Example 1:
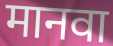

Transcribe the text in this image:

मानवा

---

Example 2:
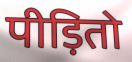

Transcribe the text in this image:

पीड़ितो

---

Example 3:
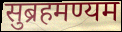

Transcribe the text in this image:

सुब्रहमण्यम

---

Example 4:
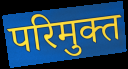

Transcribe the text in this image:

परिमुक्त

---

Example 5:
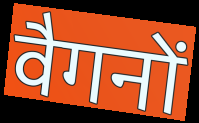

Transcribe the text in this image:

वैगनों